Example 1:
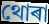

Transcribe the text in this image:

থোৰা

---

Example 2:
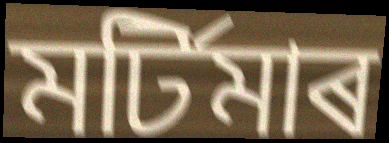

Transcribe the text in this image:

মৰ্টিমাৰ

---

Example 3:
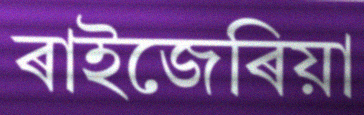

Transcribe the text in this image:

ৰাইজেৰিয়া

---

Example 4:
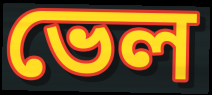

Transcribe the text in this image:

ভেল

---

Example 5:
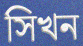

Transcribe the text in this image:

সিখন